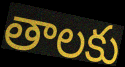
తాలకు